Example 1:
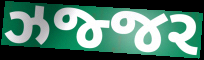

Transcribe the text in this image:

ઝજ્જર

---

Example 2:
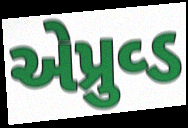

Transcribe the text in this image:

એપ્રુવ્ડ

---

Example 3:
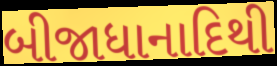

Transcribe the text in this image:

બીજાધાનાદિથી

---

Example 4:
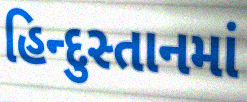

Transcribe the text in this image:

હિન્દુસ્તાનમાં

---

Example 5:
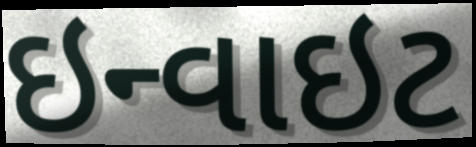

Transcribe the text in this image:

ઇન્વાઇટ